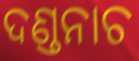
ଦଣ୍ଡନାଚ